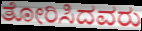
ತೋರಿಸಿದವರು